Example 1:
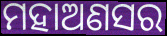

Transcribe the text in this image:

ମହାଅଣସର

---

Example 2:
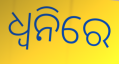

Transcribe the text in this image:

ଧ୍ଵନିରେ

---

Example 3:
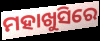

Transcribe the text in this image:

ମହାଖୁସିରେ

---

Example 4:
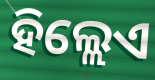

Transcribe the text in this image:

ହିଲ୍ଲେଏ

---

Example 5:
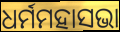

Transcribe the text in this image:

ଧର୍ମମହାସଭା